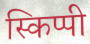
स्किप्पी